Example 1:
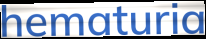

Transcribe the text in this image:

hematuria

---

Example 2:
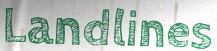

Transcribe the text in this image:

Landlines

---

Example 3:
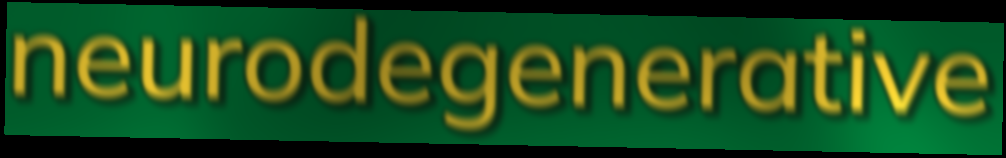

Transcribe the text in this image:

neurodegenerative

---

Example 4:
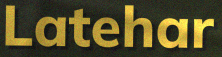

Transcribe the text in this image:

Latehar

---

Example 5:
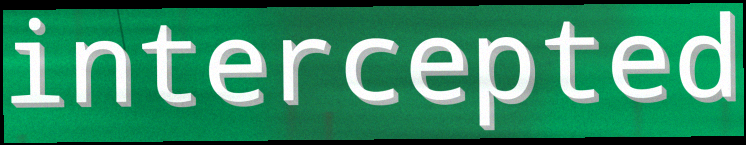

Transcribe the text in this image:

intercepted